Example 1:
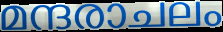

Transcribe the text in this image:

മന്ദരാചലം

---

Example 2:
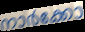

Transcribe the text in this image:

നാർക്കോ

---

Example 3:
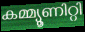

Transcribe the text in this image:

കമ്മ്യൂണിറ്റി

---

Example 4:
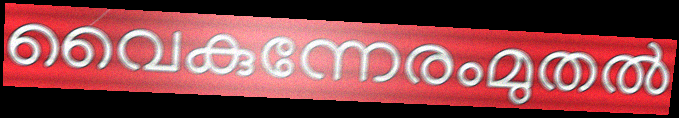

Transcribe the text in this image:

വൈകുന്നേരംമുതൽ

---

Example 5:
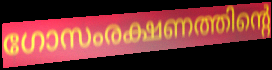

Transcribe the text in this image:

ഗോസംരക്ഷണത്തിന്റെ